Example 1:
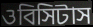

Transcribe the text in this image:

ওবিসিটাস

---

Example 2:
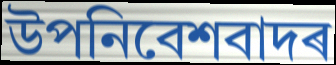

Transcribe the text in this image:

উপনিবেশবাদৰ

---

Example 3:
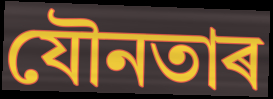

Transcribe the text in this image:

যৌনতাৰ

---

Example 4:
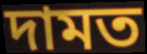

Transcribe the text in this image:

দামত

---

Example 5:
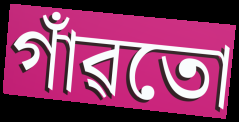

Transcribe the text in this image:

গাঁৱতো